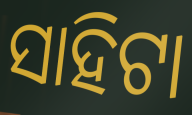
ସାହିଟା